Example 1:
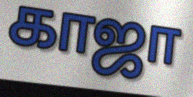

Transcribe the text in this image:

காஜா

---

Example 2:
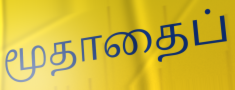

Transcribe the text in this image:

மூதாதைப்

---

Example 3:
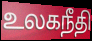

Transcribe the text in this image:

உலகநீதி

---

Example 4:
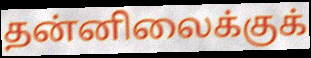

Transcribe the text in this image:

தன்னிலைக்குக்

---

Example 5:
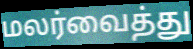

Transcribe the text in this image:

மலர்வைத்து